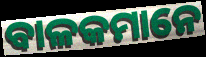
ବାଳକମାନେ